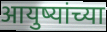
आयुष्यांच्या